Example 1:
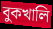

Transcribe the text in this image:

বুকখালি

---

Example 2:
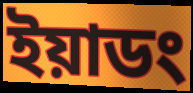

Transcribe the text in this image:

ইয়াডং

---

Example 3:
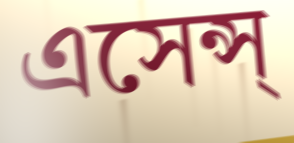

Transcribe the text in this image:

এসেন্স্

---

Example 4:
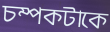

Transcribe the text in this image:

চম্পকটাকে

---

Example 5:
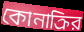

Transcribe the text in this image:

কোনাক্রির